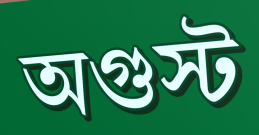
অগুস্ট